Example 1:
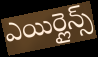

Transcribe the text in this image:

ఎయిర్లైన్స్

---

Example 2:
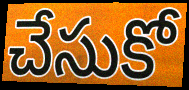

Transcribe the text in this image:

చేసుకో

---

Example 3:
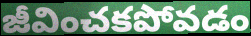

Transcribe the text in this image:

జీవించకపోవడం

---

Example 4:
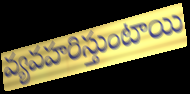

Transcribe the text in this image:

వ్యవహరిస్తుంటాయి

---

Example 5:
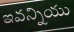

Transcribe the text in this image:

ఇవన్నియు